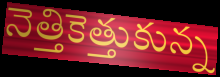
నెత్తికెత్తుకున్న